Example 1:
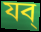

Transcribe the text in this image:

যব্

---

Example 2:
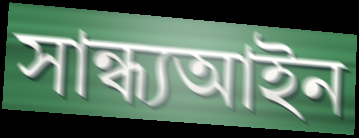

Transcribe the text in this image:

সান্ধ্যআইন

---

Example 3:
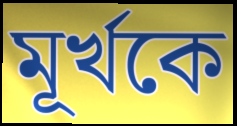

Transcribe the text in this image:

মূর্খকে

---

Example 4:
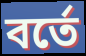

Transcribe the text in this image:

বর্তে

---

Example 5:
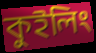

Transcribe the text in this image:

কুইলিং